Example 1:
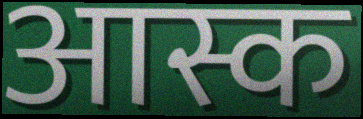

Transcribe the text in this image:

आस्क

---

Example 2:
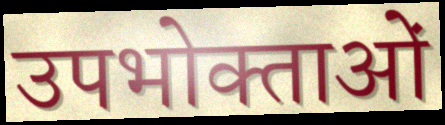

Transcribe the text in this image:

उपभोक्‍ताओं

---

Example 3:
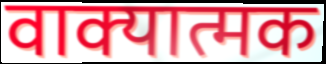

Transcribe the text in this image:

वाक्यात्मक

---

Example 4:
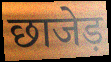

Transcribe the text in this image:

छाजेड़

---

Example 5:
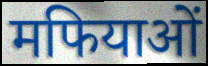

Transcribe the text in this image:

मफियाओं